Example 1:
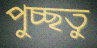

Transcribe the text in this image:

পুচ্ছতু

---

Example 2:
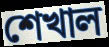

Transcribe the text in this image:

শেখাল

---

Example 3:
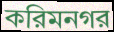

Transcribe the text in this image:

করিমনগর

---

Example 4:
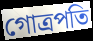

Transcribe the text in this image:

গোত্রপতি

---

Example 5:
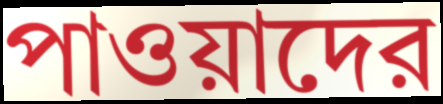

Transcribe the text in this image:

পাওয়াদের